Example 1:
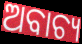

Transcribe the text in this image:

ଅବାଚ୍ୟ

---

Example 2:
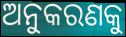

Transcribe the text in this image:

ଅନୁକରଣକୁ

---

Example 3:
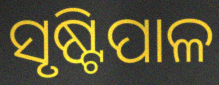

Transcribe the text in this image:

ସୃଷ୍ଟିପାଳ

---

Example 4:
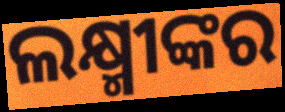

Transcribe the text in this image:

ଲକ୍ଷ୍ମୀଙ୍କର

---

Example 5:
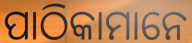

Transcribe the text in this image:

ପାଠିକାମାନେ